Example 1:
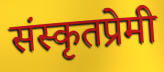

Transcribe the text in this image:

संस्कृतप्रेमी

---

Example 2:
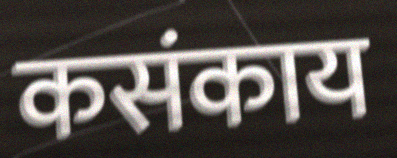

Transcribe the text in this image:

कसंकाय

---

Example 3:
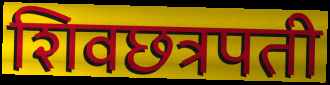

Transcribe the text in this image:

शिवछत्रपती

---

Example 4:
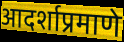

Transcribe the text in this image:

आदर्शाप्रमाणे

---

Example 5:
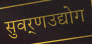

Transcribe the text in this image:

सुवर्णउद्योग